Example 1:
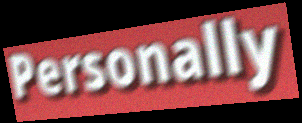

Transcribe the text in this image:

Personally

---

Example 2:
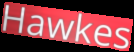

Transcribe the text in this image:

Hawkes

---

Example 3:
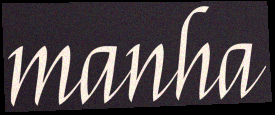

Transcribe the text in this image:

manha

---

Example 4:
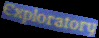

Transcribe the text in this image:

Exploratory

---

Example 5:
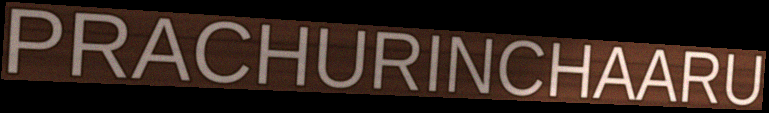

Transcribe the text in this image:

PRACHURINCHAARU